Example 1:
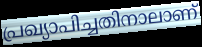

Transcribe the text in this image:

പ്രഖ്യാപിച്ചതിനാലാണ്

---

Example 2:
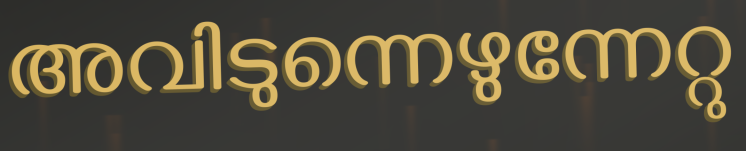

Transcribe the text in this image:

അവിടുന്നെഴുന്നേറ്റു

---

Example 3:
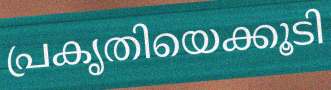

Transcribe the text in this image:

പ്രകൃതിയെക്കൂടി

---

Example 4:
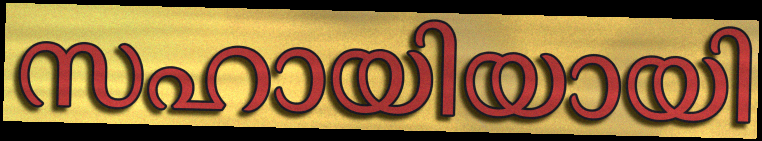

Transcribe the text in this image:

സഹായിയായി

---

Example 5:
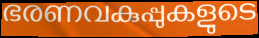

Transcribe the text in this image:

ഭരണവകുപ്പുകളുടെ